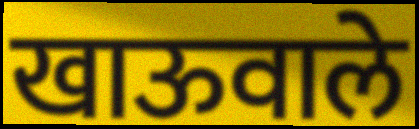
खाऊवाले